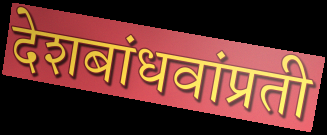
देशबांधवांप्रती